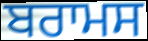
ਬਰਾਮਸ